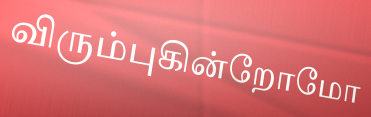
விரும்புகின்றோமோ